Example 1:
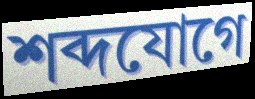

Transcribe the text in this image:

শব্দযোগে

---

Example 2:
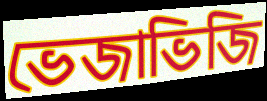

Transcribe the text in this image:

ভেজাভিজি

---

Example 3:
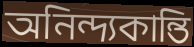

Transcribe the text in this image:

অনিন্দ্যকান্তি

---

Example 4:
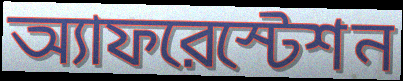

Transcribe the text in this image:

অ্যাফরেস্টেশন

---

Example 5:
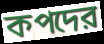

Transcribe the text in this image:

কপদের